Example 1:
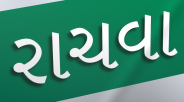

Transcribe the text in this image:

રાચવા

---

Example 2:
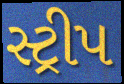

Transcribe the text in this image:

સ્ટ્રીપ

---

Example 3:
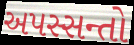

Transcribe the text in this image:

અપસ્સન્તો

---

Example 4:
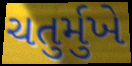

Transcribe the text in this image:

ચતુર્મુખે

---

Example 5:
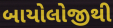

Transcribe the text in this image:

બાયોલોજીથી